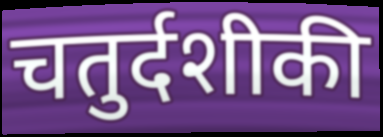
चतुर्दशीकी